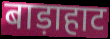
बाड़ाहाट